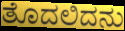
ತೊದಲಿದನು